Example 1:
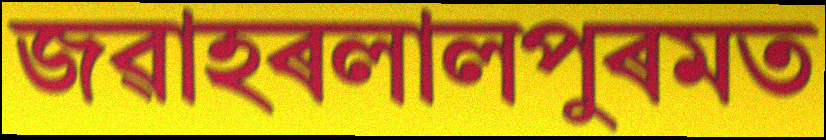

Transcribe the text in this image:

জৱাহৰলালপুৰমত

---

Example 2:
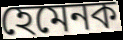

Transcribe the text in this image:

হেমেনক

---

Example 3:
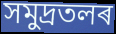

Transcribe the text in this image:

সমুদ্ৰতলৰ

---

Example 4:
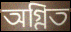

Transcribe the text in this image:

অগ্নিত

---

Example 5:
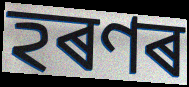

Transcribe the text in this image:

হৰণৰ